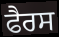
ਫੈਰਸ